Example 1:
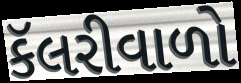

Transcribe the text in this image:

કૅલરીવાળો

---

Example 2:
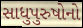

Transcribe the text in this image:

સાધુપુરુષોનો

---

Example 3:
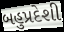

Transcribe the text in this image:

બહુપ્રદેશી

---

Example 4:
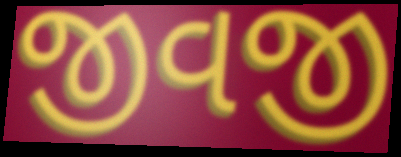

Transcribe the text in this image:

જીવજી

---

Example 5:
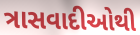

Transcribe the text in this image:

ત્રાસવાદીઓથી